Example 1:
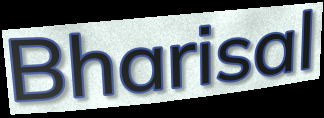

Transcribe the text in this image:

Bharisal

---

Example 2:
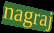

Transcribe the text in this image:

nagraj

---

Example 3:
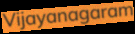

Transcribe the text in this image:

Vijayanagaram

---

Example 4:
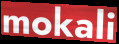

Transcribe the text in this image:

mokali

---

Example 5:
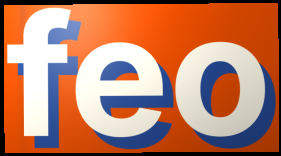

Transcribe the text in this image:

feo